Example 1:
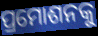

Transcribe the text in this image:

ପ୍ରମୋଶନକୁ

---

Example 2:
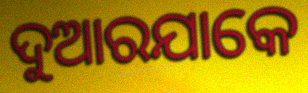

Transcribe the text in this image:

ଦୁଆରଯାକେ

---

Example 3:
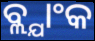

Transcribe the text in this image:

ବ୍ଲ୍ଯାଂକ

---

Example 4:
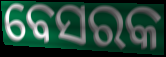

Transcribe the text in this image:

ବେସରକ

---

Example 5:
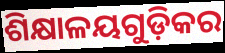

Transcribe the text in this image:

ଶିକ୍ଷାଳୟଗୁଡ଼ିକର